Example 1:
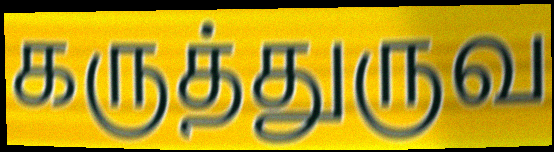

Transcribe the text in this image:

கருத்துருவ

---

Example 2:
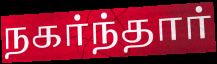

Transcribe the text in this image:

நகர்ந்தார்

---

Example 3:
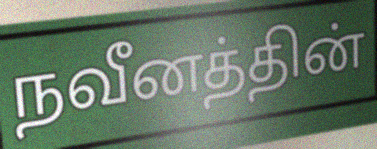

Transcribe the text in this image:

நவீனத்தின்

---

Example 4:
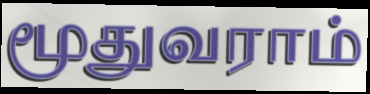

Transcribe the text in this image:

மூதுவராம்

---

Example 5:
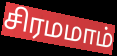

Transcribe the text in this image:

சிரமமாம்